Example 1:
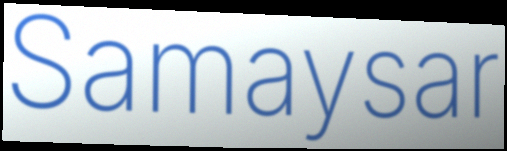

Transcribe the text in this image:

Samaysar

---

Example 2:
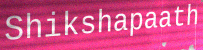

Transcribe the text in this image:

Shikshapaath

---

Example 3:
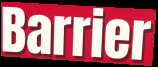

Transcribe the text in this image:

Barrier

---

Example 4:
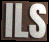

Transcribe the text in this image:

ILS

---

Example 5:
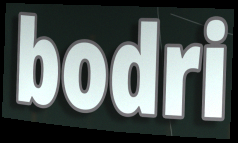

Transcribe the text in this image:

bodri